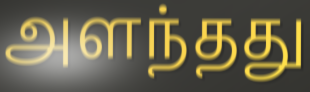
அளந்தது